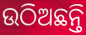
ଉଠିଅଛନ୍ତି